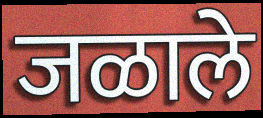
जळाले